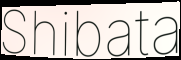
Shibata